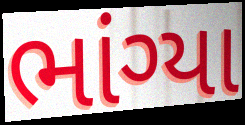
ભાંગ્યા